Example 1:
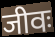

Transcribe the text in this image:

जीवः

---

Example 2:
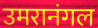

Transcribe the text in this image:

उमरानंगल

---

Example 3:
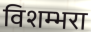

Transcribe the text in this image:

विशम्भरा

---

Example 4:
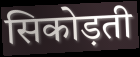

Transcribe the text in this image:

सिकोड़ती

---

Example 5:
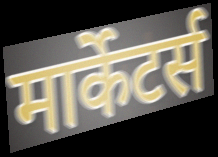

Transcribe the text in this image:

मार्केटर्स